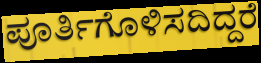
ಪೂರ್ತಿಗೊಳಿಸದಿದ್ದರೆ